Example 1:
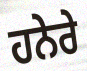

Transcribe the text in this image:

ਹਨੇਰੇ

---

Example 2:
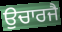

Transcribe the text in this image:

ਉਚਾਰਜੈ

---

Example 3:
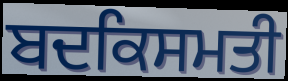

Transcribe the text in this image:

ਬਦਕਿਸਮਤੀ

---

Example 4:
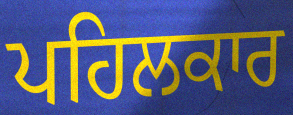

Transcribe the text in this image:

ਪਹਿਲਕਾਰ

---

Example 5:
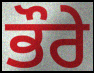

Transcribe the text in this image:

ਭੌਰੇ